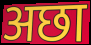
अछा